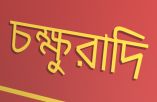
চক্ষুরাদি